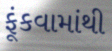
ફૂંકવામાંથી